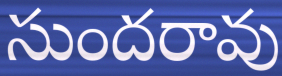
సుందరావు